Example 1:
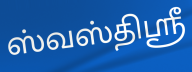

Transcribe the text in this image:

ஸ்வஸ்திஸ்ரீ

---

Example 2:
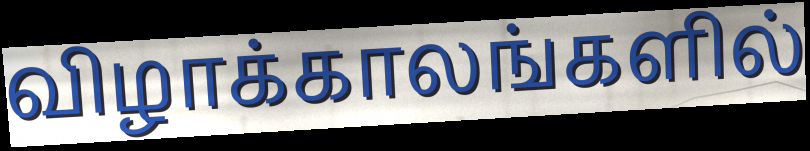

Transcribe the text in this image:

விழாக்காலங்களில்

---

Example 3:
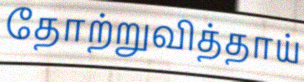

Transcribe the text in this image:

தோற்றுவித்தாய்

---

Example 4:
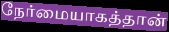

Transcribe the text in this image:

நேர்மையாகத்தான்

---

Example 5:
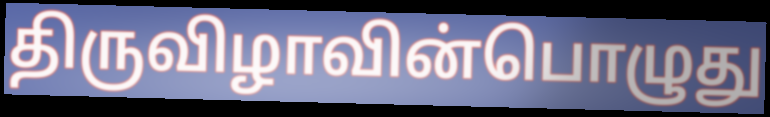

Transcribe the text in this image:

திருவிழாவின்பொழுது